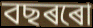
বছৰৰো